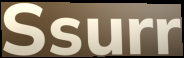
Ssurr